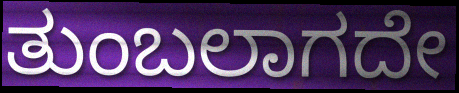
ತುಂಬಲಾಗದೇ